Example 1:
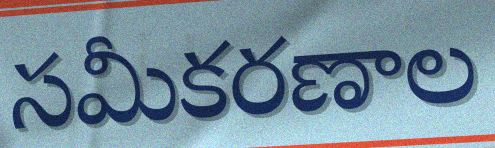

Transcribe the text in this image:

సమీకరణాల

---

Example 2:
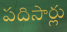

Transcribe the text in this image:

పదిసార్లు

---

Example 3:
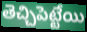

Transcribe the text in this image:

తెచ్చిపెట్టేయి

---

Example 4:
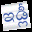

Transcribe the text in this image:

ఇడ్లీ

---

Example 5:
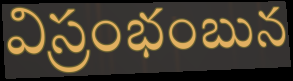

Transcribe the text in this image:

విస్రంభంబున